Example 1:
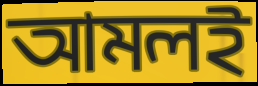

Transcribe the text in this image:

আমলই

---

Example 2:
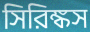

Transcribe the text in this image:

সিরিঙ্কস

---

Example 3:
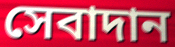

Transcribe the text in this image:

সেবাদান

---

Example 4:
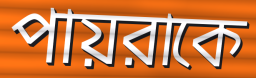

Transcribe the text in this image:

পায়রাকে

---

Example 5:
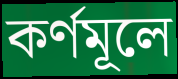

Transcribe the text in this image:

কর্ণমূলে